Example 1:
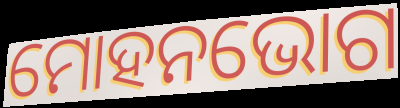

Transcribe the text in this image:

ମୋହନଭୋଗ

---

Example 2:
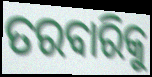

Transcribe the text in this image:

ତରବାରିକୁ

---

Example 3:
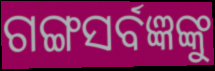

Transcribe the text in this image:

ଗଙ୍ଗସର୍ବଜ୍ଞଙ୍କୁ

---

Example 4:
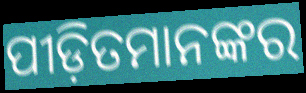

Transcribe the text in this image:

ପୀଡ଼ିତମାନଙ୍କର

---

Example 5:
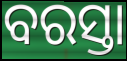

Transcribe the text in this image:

ବରସ୍ତା